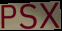
PSX